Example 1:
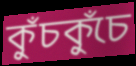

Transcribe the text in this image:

কুঁচকুঁচে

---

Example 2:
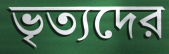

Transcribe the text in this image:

ভৃত্যদের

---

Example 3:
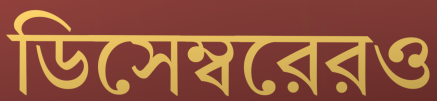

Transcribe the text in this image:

ডিসেম্বরেরও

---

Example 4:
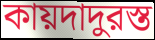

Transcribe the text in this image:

কায়দাদুরস্ত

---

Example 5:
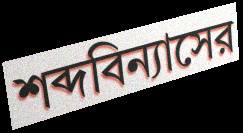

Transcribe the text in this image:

শব্দবিন্যাসের